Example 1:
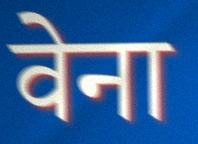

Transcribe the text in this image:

वेना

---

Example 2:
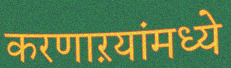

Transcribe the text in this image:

करणाऱयांमध्ये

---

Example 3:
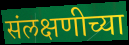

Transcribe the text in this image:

संलक्षणीच्या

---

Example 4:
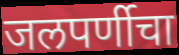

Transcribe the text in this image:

जलपर्णीचा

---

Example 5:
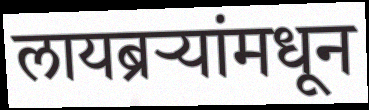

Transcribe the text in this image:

लायब्रऱ्यांमधून